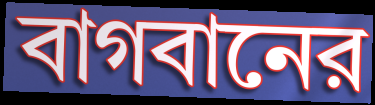
বাগবানের